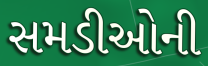
સમડીઓની